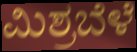
ಮಿಶ್ರಬೆಳೆ